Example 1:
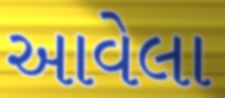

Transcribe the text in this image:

આવેલા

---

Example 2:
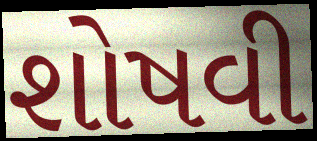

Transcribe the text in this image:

શોષવી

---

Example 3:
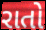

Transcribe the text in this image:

રાતો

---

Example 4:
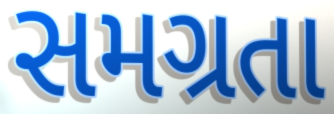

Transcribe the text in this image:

સમગ્રતા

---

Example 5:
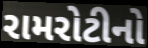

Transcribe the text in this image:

રામરોટીનો